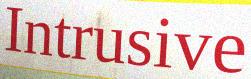
Intrusive